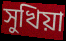
সুখিয়া